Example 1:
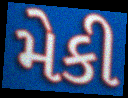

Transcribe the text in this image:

મેકી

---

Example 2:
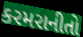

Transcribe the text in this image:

કરમરાનીતો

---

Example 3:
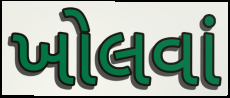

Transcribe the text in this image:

ખોલવાં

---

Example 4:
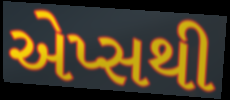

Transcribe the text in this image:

એપ્સથી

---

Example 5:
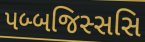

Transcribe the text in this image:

પબ્બજિસ્સસિ